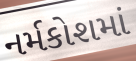
નર્મકોશમાં